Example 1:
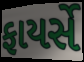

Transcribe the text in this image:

ફાયર્સે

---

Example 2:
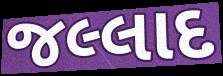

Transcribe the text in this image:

જલ્લાદ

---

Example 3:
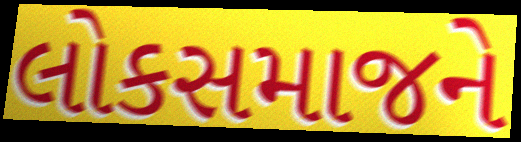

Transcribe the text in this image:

લોકસમાજને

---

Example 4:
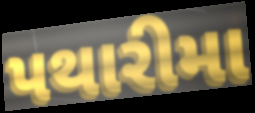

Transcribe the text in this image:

પથારીમા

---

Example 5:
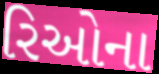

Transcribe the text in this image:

રિઓના